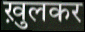
ख़ुलकर